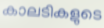
കാലടികളുടെ